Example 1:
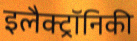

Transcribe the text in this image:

इलैक्ट्रॉनिकी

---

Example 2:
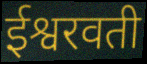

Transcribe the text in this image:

ईश्वरवती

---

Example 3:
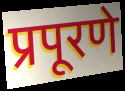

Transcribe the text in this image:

प्रपूरणे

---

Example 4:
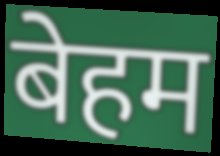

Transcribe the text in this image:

बेहम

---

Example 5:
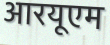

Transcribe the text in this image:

आरयूएम